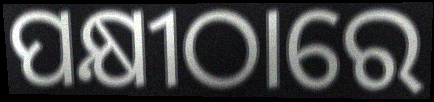
ପକ୍ଷୀଠାରେ